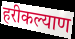
हरीकल्याण